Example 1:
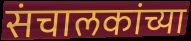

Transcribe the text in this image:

संचालकांच्या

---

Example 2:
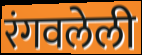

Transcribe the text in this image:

रंगवलेली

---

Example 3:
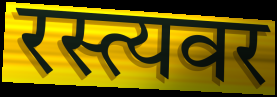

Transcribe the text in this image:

रस्त्यवर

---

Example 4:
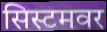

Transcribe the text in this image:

सिस्टमवर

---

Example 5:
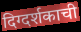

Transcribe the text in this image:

दिग्दर्शकाची